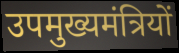
उपमुख्यमंत्रियों